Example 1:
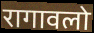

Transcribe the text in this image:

रागावलो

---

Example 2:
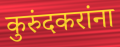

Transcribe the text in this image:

कुरुंदकरांना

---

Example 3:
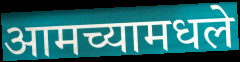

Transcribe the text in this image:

आमच्यामधले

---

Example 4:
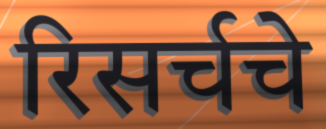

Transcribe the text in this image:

रिसर्चचे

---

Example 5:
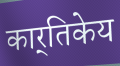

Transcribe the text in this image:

कार्तिकेय